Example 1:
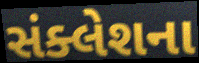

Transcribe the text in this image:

સંક્લેશના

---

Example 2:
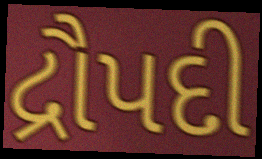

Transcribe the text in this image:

દ્રૌપદી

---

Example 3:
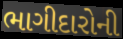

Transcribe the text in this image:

ભાગીદારોની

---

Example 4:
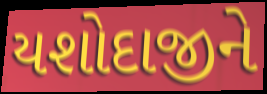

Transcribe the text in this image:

યશોદાજીને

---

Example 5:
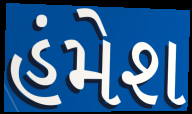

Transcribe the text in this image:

હંમેશ